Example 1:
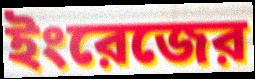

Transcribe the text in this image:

ইংরেজের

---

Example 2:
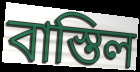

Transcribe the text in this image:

বাস্তিল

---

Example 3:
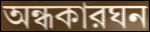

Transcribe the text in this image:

অন্ধকারঘন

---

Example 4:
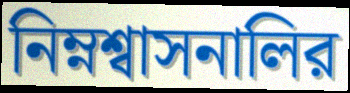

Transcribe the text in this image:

নিম্নশ্বাসনালির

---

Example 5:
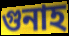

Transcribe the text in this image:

গুনাহ